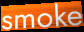
smoke